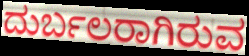
ದುರ್ಬಲರಾಗಿರುವ